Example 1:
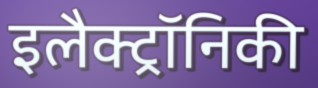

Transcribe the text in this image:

इलैक्ट्रॉनिकी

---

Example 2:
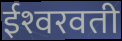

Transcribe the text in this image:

ईश्वरवती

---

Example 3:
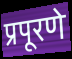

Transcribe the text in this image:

प्रपूरणे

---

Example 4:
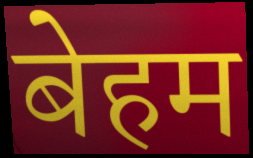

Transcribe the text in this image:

बेहम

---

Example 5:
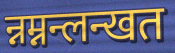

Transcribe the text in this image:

न्नम्नन्लन्खत